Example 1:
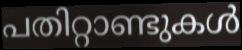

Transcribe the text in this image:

പതിറ്റാണ്ടുകൾ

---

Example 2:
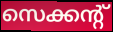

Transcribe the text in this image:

സെക്കന്റ്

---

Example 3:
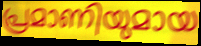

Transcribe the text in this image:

പ്രമാണിയുമായ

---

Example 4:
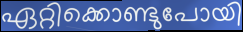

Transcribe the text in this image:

ഏറ്റിക്കൊണ്ടുപോയി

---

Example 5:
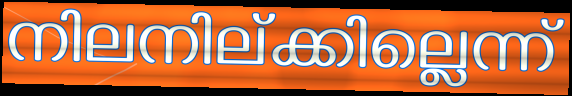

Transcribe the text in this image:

നിലനില്ക്കില്ലെന്ന്